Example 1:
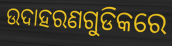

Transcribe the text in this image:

ଉଦାହରଣଗୁଡିକରେ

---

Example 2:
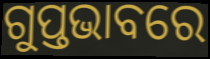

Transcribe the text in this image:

ଗୁପ୍ତଭାବରେ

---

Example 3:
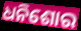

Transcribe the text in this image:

ଧନିଶୋର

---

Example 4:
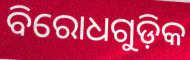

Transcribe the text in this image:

ବିରୋଧଗୁଡ଼ିକ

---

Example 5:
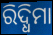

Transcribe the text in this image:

ରିଦ୍ଧିମା